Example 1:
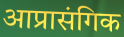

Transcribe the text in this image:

आप्रासंगिक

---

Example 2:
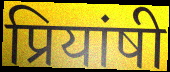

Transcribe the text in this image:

प्रियांषी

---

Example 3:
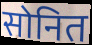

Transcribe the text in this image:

सोनित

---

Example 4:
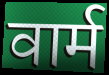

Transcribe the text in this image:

वार्म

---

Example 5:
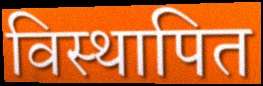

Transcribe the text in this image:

विस्थापित